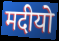
मदीयो